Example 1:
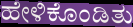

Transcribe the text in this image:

ಹೇಳಿಕೊಂಡಿತು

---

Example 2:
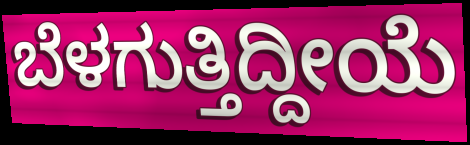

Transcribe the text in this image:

ಬೆಳಗುತ್ತಿದ್ದೀಯೆ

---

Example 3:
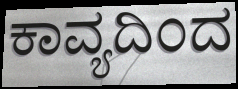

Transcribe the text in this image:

ಕಾವ್ಯದಿಂದ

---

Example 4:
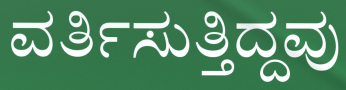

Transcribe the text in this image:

ವರ್ತಿಸುತ್ತಿದ್ದವು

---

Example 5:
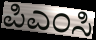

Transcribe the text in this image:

ಪಿಎಂಸಿ